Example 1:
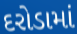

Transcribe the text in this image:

દરોડામાં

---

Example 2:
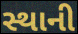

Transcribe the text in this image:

સ્થાની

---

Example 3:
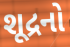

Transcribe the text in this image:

શૂદ્રનો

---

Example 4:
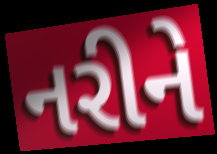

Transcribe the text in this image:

નરીને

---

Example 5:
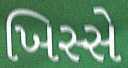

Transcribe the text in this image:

ખિસ્સે